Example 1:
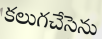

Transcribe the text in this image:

కలుగచేసెను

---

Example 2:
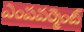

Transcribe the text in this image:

ఎంపవర్మెంట్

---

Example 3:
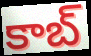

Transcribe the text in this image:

కాబ్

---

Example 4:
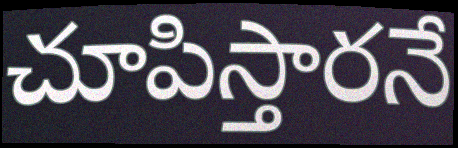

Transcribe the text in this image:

చూపిస్తారనే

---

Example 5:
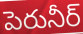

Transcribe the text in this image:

పెరునీర్